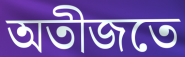
অতীজতে